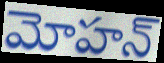
మోహన్